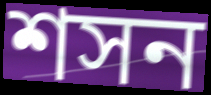
শসন